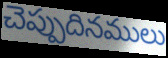
చెప్పుదినములు